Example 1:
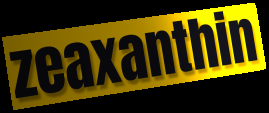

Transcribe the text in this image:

zeaxanthin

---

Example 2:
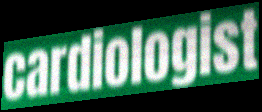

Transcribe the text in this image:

cardiologist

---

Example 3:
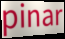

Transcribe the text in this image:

pinar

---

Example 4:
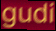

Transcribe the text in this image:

gudi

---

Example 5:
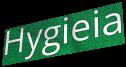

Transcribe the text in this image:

Hygieia